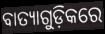
ବାତ୍ୟାଗୁଡ଼ିକରେ